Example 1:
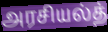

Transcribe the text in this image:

அரசியல்த்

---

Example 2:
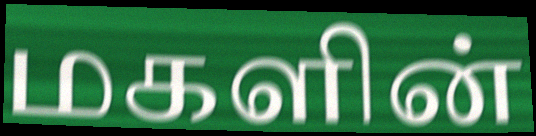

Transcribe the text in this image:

மகளின்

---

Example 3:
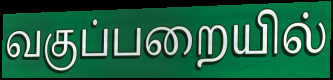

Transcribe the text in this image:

வகுப்பறையில்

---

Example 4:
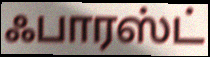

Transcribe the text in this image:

ஃபாரஸ்ட்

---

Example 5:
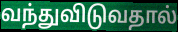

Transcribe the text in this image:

வந்துவிடுவதால்